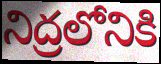
నిద్రలోనికి